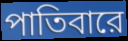
পাতিবারে